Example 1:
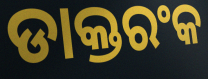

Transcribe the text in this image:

ଡାକ୍ତରଂକ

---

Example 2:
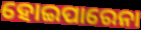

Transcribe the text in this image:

ହୋଇପାରେନା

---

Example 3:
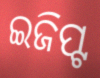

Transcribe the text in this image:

ଇଜିପ୍ଟ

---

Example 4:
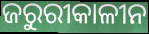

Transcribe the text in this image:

ଜରୁରୀକାଳୀନ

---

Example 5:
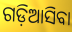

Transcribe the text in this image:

ଗଡ଼ିଆସିବା